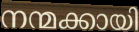
നന്മക്കായി